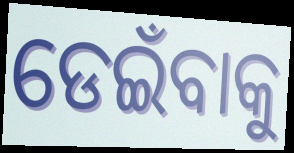
ଡେଇଁବାକୁ